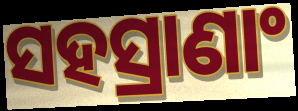
ସହସ୍ରାଣାଂ